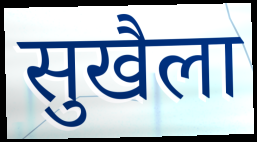
सुखैला